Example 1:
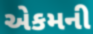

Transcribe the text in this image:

એકમની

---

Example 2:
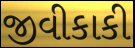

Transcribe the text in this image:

જીવીકાકી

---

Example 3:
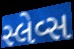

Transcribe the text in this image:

સ્લેવ્સ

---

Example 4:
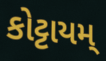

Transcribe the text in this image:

કોટ્ટાયમ્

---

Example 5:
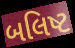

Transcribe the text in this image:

બલિષ્ટ